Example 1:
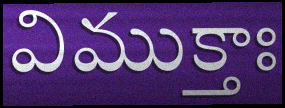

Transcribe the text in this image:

విముక్తాః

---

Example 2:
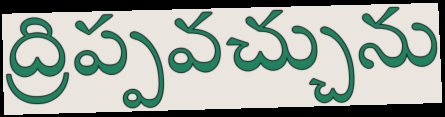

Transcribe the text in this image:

ద్రిప్పవచ్చును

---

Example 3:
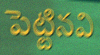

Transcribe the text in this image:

పెట్టినవి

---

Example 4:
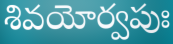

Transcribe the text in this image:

శివయోర్వపుః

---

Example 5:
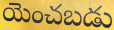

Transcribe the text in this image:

యెంచబడు